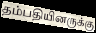
தம்பதியினருக்கு